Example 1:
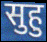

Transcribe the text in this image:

सुहु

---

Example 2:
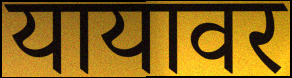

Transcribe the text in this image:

यायावर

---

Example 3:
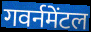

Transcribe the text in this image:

गवर्नमेंटल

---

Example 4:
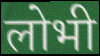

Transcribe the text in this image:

लोभी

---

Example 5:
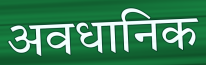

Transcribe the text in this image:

अवधानिक